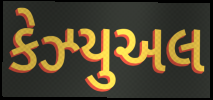
કેઝ્યુઅલ